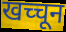
खच्चून